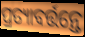
ପ୍ରତ୍ୟାବର୍ତ୍ତନ୍ତେ